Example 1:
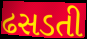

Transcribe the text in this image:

ઢસડતી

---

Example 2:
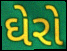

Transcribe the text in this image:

ઘેરો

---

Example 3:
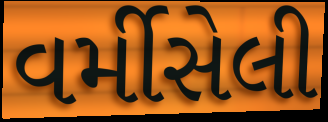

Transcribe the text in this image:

વર્મીસેલી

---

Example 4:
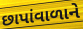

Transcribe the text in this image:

છાપાંવાળાને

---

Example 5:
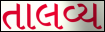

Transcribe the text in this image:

તાલવ્ય